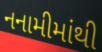
નનામીમાંથી